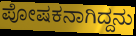
ಪೋಷಕನಾಗಿದ್ದನು